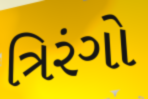
ત્રિરંગો